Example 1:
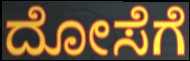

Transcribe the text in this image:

ದೋಸೆಗೆ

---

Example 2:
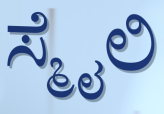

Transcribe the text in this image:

ಸ್ಮೈಲಿ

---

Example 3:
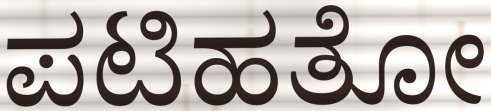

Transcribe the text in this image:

ಪಟಿಹತೋ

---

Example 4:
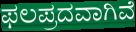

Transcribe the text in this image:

ಫಲಪ್ರದವಾಗಿವೆ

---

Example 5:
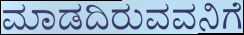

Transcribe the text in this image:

ಮಾಡದಿರುವವನಿಗೆ